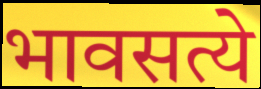
भावसत्ये